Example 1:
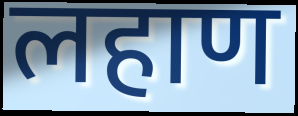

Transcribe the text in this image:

लहाण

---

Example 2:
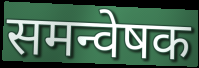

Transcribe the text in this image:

समन्वेषक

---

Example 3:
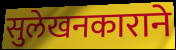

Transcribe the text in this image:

सुलेखनकाराने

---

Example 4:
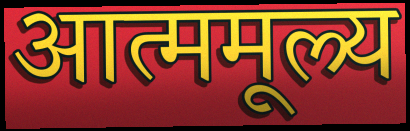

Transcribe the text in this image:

आत्ममूल्य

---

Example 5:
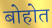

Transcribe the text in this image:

बोहोत